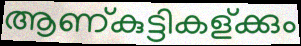
ആണ്കുട്ടികള്ക്കും